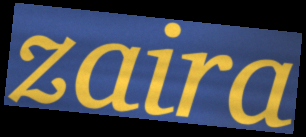
zaira